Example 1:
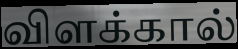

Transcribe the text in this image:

விளக்கால்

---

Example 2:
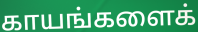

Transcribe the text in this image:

காயங்களைக்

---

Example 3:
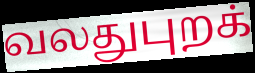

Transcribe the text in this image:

வலதுபுறக்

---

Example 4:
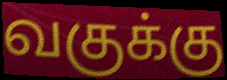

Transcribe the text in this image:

வகுக்கு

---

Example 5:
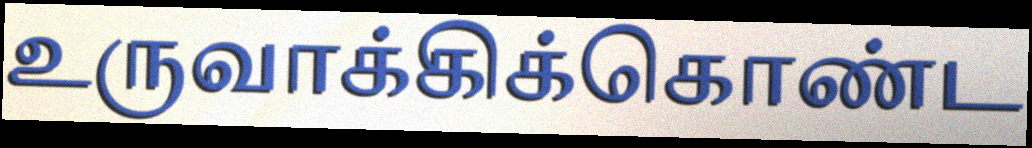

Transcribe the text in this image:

உருவாக்கிக்கொண்ட